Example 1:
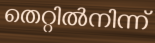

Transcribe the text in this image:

തെറ്റിൽനിന്ന്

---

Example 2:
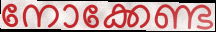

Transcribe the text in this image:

നോക്കേണ്ട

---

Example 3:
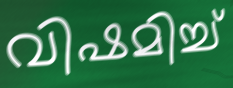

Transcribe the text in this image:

വിഷമിച്ച്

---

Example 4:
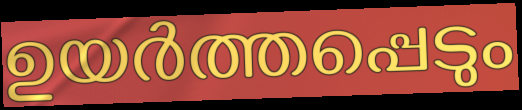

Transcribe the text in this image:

ഉയർത്തപ്പെടും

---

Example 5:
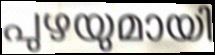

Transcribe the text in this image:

പുഴയുമായി